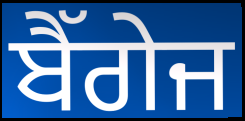
ਬੈੱਗੇਜ